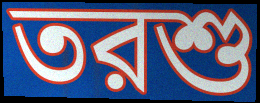
তরশু